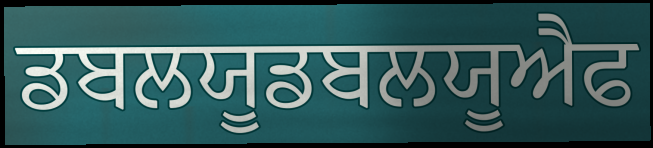
ਡਬਲਯੂਡਬਲਯੂਐਫ